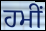
ਹਮੀਂ